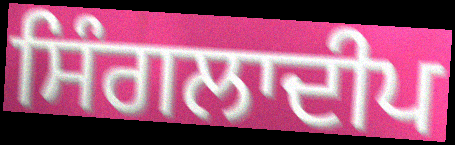
ਸਿੰਗਲਾਦੀਪ